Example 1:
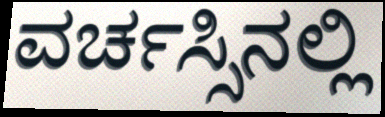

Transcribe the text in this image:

ವರ್ಚಸ್ಸಿನಲ್ಲಿ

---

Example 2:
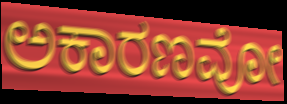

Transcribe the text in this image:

ಅಕಾರಣವೋ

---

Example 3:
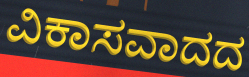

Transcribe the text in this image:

ವಿಕಾಸವಾದದ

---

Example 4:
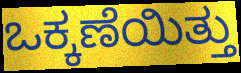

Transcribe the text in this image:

ಒಕ್ಕಣೆಯಿತ್ತು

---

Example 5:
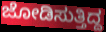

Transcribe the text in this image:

ಜೋಡಿಸುತ್ತಿದ್ದ